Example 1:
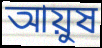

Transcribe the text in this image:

আয়ুষ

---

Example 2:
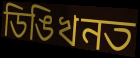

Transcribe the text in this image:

ডিঙিখনত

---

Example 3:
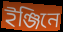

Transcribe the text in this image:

ইঞ্জিনে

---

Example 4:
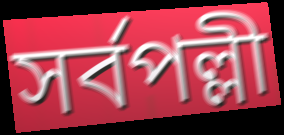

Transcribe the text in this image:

সৰ্বপল্লী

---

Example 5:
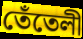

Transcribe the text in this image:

তেঁতেলী